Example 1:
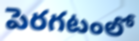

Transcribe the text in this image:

పెరగటంలో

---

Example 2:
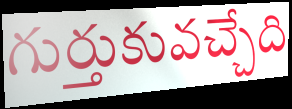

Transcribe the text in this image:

గుర్తుకువచ్చేది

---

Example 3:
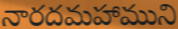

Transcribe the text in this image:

నారదమహాముని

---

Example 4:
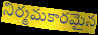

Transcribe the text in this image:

నిర్మమకారమైన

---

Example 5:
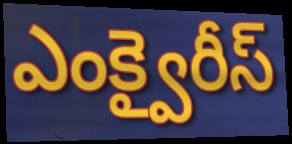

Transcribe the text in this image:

ఎంక్వైరీస్